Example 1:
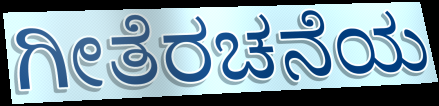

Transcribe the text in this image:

ಗೀತೆರಚನೆಯ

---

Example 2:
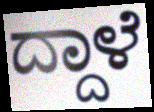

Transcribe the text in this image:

ದ್ದಾಳೆ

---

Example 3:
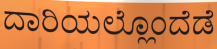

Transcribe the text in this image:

ದಾರಿಯಲ್ಲೊಂದೆಡೆ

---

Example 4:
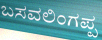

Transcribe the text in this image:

ಬಸವಲಿಂಗಪ್ಪ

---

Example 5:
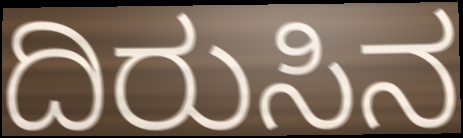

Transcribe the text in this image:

ದಿರುಸಿನ